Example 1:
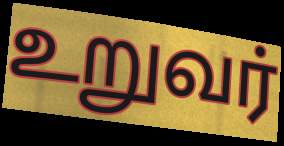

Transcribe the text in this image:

உறுவர்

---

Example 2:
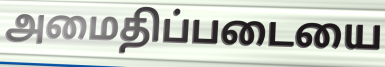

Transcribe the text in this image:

அமைதிப்படையை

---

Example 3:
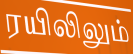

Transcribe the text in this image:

ரயிலிலும்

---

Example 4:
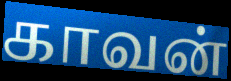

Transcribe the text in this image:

காவன்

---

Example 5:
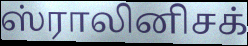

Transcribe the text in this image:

ஸ்ராலினிசக்